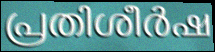
പ്രതിശീർഷ